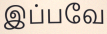
இப்பவே